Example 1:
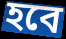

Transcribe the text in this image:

হবে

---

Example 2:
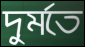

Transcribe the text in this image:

দুর্মতে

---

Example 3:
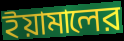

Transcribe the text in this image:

ইয়ামালের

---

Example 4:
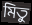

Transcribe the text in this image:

মিতু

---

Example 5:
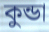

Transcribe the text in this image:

কুন্ডা